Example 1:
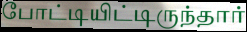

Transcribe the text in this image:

போட்டியிட்டிருந்தார்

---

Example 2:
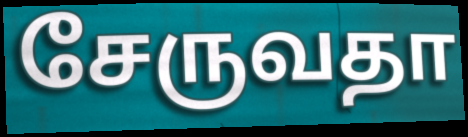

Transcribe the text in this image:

சேருவதா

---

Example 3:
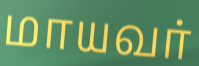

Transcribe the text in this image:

மாயவர்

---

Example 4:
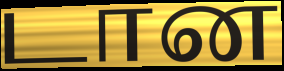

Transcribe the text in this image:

டான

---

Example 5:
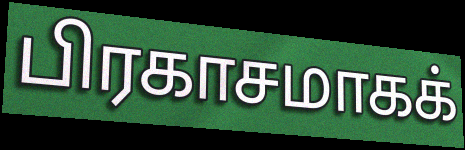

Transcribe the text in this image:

பிரகாசமாகக்